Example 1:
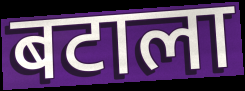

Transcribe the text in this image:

बटाला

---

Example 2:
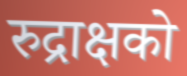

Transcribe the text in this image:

रुद्राक्षको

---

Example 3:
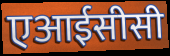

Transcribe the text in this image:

एआईसीसी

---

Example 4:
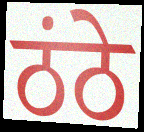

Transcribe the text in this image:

ठंठे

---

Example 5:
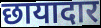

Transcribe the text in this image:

छायादार